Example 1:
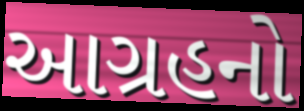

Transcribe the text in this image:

આગ્રહનો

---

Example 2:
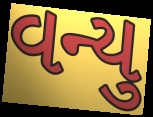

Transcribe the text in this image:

વન્યુ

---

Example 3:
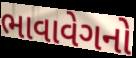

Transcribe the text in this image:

ભાવાવેગનો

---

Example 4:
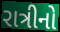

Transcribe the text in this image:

રાત્રીનો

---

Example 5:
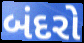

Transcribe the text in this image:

બંદરો